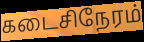
கடைசிநேரம்